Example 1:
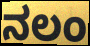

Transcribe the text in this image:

ನಲಂ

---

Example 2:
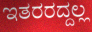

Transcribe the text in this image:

ಇತರರದ್ದಲ್ಲ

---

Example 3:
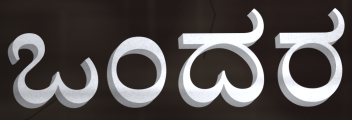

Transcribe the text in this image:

ಒಂದರ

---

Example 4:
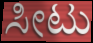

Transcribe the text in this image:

ಸೀಟು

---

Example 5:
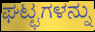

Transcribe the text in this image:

ಘಟ್ಟಗಳನ್ನು